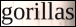
gorillas